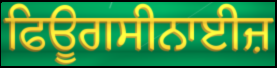
ਫਿਊਗਸੀਨਾਈਜ਼